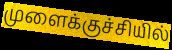
முளைக்குச்சியில்